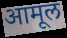
आमूल